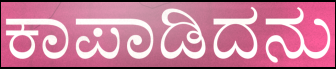
ಕಾಪಾಡಿದನು